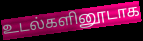
உடல்களினூடாக